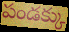
పండక్కు